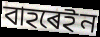
বাহৰেইন